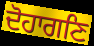
ਦੋਹਾਗਣਿ